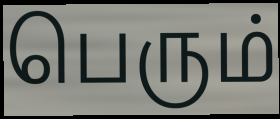
பெரும்